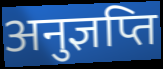
अनुज्ञप्ति